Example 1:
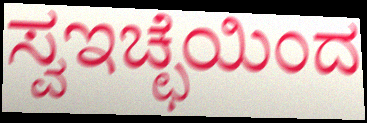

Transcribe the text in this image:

ಸ್ವಇಚ್ಛೆಯಿಂದ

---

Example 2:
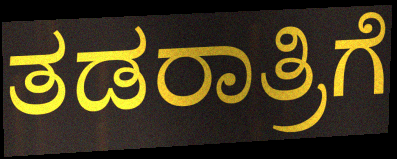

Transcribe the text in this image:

ತಡರಾತ್ರಿಗೆ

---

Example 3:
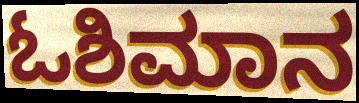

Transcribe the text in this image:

ಓಶಿಮಾನ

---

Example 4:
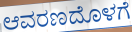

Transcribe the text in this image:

ಆವರಣದೊಳಗೆ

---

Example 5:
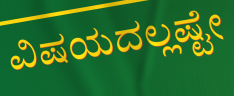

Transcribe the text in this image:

ವಿಷಯದಲ್ಲಷ್ಟೇ